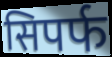
सिपर्फ